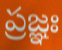
ప్రజ్ఞః